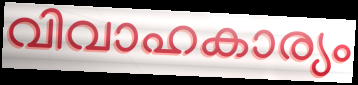
വിവാഹകാര്യം